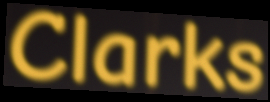
Clarks